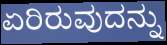
ಏರಿರುವುದನ್ನು